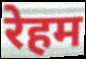
रेहम